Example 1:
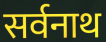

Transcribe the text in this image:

सर्वनाथ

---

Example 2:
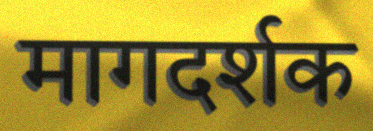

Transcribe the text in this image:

मागदर्शक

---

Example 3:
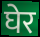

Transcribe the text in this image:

घेर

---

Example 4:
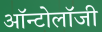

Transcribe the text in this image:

ऑन्टोलॉजी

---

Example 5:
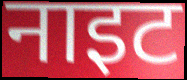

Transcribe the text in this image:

नाइट